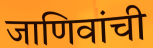
जाणिवांची